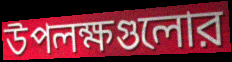
উপলক্ষগুলোর